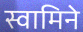
स्वामिने